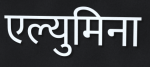
एल्युमिना